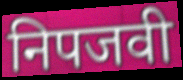
निपजवी